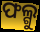
ଫଲ୍ଗୁ